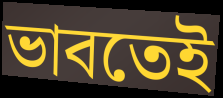
ভাবতেই